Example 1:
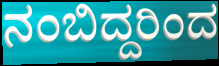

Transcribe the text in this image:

ನಂಬಿದ್ದರಿಂದ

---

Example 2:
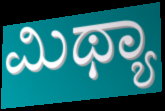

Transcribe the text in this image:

ಮಿಥ್ಯಾ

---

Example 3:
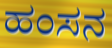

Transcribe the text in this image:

ಹಂಸನ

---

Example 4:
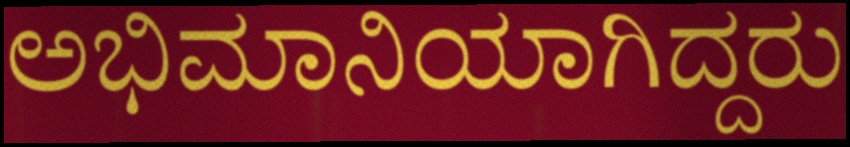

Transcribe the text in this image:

ಅಭಿಮಾನಿಯಾಗಿದ್ದರು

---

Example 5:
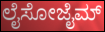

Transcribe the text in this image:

ಲೈಸೋಜೈಮ್